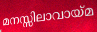
മനസ്സിലാവായ്മ